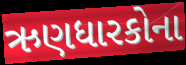
ઋણધારકોના